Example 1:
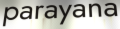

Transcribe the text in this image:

parayana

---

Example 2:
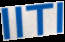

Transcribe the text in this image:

IITI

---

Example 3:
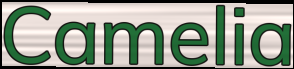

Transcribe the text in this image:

Camelia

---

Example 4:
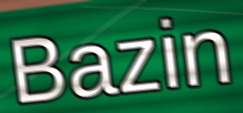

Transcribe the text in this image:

Bazin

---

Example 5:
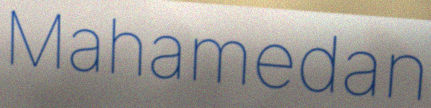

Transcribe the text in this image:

Mahamedan